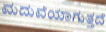
ಮದುವೆಯಾಗುತ್ತದೆ